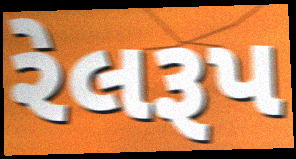
રેલરૂપ